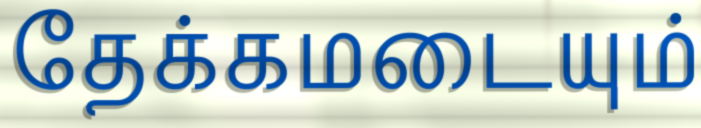
தேக்கமடையும்